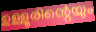
ഉള്ളൂരിന്റെയും